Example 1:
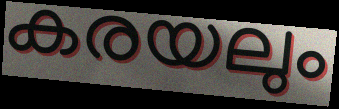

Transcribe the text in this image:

കരയലും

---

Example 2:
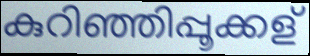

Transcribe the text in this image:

കുറിഞ്ഞിപ്പൂക്കള്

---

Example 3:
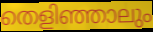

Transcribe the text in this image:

തെളിഞ്ഞാലും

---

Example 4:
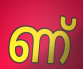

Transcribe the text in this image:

ണ്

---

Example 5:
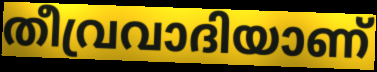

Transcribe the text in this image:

തീവ്രവാദിയാണ്